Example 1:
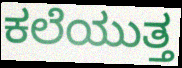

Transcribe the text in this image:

ಕಲೆಯುತ್ತ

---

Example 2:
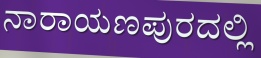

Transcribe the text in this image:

ನಾರಾಯಣಪುರದಲ್ಲಿ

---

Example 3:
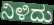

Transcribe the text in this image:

ನಿಳಿದು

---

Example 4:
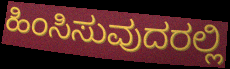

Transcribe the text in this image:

ಹಿಂಸಿಸುವುದರಲ್ಲಿ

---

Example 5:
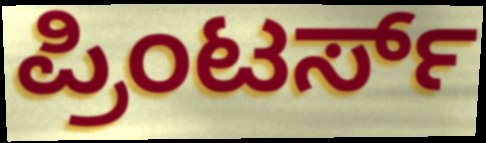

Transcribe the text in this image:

ಪ್ರಿಂಟರ್ಸ್